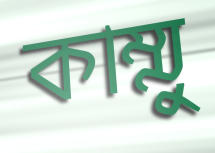
কাম্মু